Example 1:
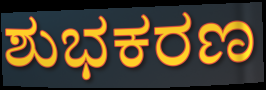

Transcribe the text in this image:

ಶುಭಕರಣ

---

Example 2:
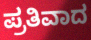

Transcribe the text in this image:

ಪ್ರತಿವಾದ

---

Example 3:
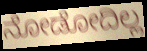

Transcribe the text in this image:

ನೋಡೋದಿಲ್ಲ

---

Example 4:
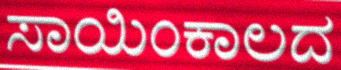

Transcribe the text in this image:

ಸಾಯಿಂಕಾಲದ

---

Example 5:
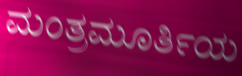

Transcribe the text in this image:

ಮಂತ್ರಮೂರ್ತಿಯ